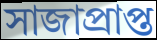
সাজাপ্রাপ্ত